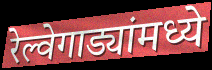
रेल्वेगाड्यांमध्ये